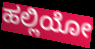
ಹಲ್ಲಿಯೋ